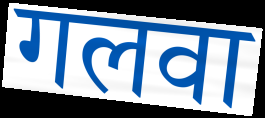
गलवा